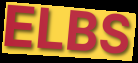
ELBS